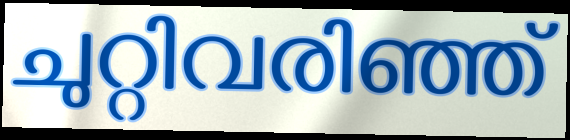
ചുറ്റിവരിഞ്ഞ്